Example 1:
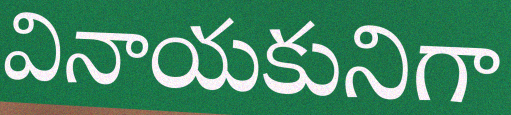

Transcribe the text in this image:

వినాయకునిగా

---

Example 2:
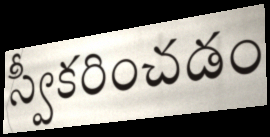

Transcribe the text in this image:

స్వీకరించడం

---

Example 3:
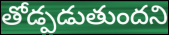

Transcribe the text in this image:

తోడ్పడుతుందని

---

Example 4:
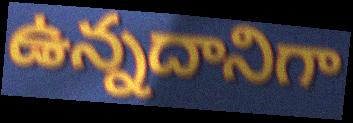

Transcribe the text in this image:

ఉన్నదానిగా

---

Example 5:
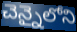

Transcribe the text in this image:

చెన్నైలోని